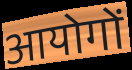
आयोगों